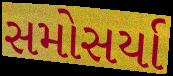
સમોસર્યા